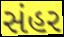
સંહર